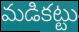
మడికట్టు